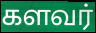
களவர்